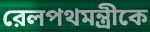
রেলপথমন্ত্রীকে